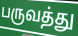
பருவத்து